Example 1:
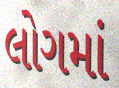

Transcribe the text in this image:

લોગમાં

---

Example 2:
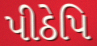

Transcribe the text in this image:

પીઠેપિ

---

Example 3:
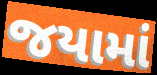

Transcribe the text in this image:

જયામાં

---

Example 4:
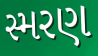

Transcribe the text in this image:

સ્મરણ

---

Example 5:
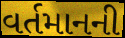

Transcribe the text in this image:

વર્તમાનની